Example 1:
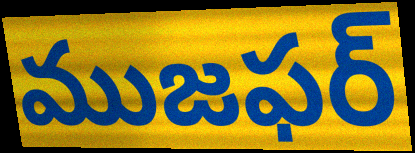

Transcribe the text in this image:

ముజఫర్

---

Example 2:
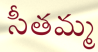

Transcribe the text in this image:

సీతమ్మ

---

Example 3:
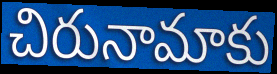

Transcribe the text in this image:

చిరునామాకు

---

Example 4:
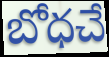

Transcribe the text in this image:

బోధచే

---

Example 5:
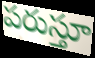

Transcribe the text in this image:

పరుస్తూ